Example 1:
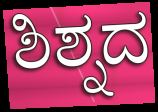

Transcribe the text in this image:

ಶಿಶ್ನದ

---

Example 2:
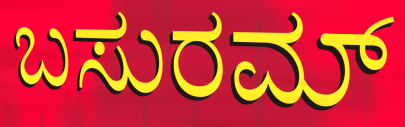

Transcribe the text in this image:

ಬಸುರಮ್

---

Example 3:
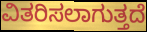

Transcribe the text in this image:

ವಿತರಿಸಲಾಗುತ್ತದೆ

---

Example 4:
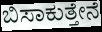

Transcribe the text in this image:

ಬಿಸಾಕುತ್ತೇನೆ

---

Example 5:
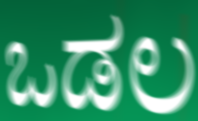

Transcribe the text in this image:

ಒಡಲ